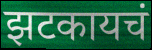
झटकायचं